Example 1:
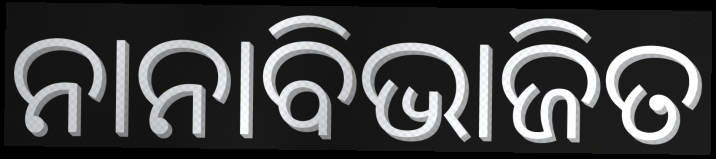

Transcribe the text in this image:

ନାନାବିଭାଜିତ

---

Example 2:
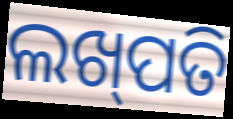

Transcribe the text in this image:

ଲଖ୍‌ପତି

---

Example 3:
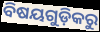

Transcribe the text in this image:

ବିଷୟଗୁଡ଼ିକରୁ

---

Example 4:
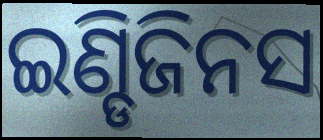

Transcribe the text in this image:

ଇଣ୍ଡିଜିନସ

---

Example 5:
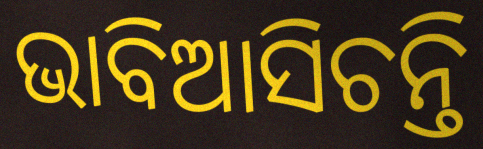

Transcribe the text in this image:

ଭାବିଆସିଚନ୍ତି